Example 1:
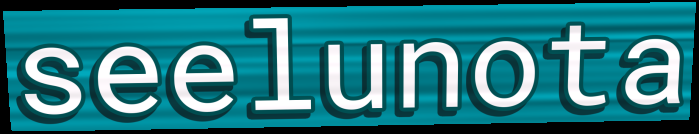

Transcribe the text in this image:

seelunota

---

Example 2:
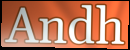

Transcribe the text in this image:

Andh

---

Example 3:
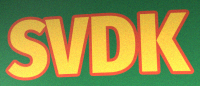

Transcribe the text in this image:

SVDK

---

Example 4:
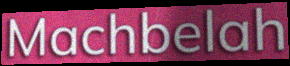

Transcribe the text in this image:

Machbelah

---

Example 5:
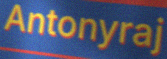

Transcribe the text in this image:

Antonyraj